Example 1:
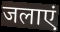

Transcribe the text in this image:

जलाएं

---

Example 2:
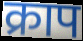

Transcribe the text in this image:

क्राप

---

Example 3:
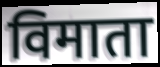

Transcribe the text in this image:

विमाता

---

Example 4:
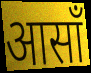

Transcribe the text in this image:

आसाँ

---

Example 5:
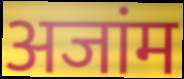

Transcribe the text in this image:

अजांम